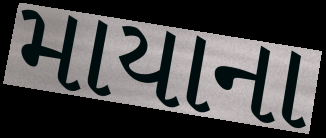
માયાના